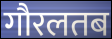
गौरलतब